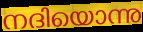
നദിയൊന്നു